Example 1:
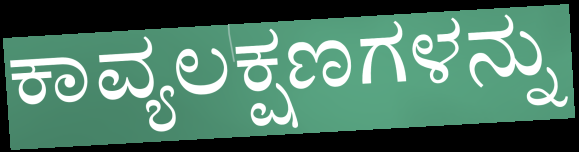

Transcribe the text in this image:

ಕಾವ್ಯಲಕ್ಷಣಗಳನ್ನು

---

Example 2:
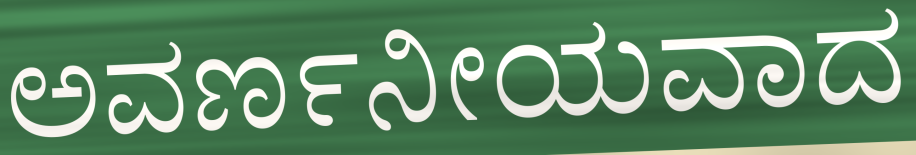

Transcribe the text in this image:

ಅವರ್ಣನೀಯವಾದ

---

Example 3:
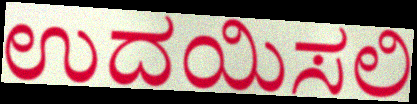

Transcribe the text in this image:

ಉದಯಿಸಲಿ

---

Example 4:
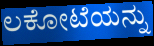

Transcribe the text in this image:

ಲಕೋಟೆಯನ್ನು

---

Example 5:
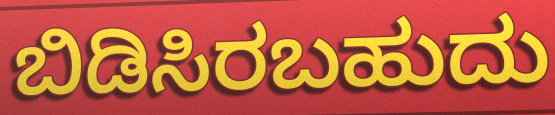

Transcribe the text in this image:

ಬಿಡಿಸಿರಬಹುದು